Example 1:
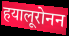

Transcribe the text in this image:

हयालूरोनन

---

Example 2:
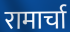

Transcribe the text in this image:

रामार्चा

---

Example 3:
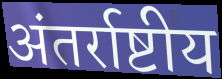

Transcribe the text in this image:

अंतर्राष्टीय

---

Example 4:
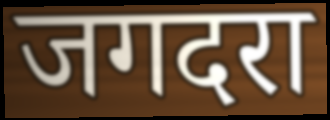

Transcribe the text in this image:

जगदरा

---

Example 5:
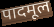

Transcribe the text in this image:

पादमूल